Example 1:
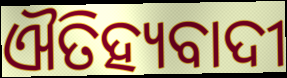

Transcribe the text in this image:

ଐତିହ୍ୟବାଦୀ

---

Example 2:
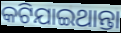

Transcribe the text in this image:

କଟିଯାଇଥାନ୍ତା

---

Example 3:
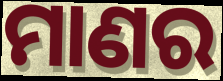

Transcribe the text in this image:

ମାଣର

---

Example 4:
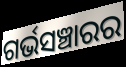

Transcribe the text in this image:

ଗର୍ଭସଞ୍ଚାରର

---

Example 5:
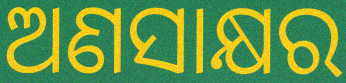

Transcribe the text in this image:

ଅଣସାକ୍ଷର